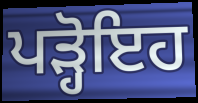
ਪੜ੍ਹੋਇਹ